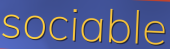
sociable